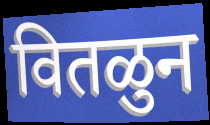
वितळुन